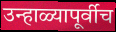
उन्हाळ्यापूर्वीच